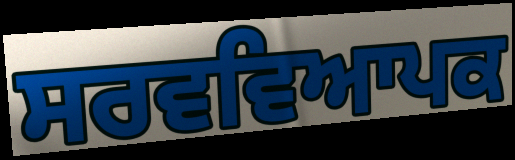
ਸਰਵਵਿਆਪਕ